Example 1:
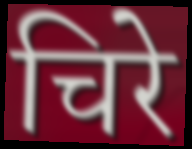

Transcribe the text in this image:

चिरे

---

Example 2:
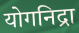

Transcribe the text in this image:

योगनिद्रा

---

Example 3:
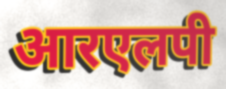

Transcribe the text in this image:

आरएलपी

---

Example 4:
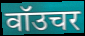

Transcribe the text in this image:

वॉउचर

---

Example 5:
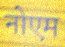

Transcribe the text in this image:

नोएम